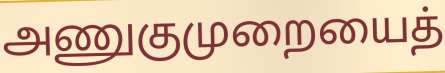
அணுகுமுறையைத்